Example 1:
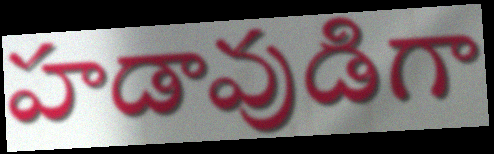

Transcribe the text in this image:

హడావుడిగా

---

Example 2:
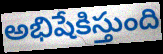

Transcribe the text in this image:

అభిషేకిస్తుంది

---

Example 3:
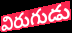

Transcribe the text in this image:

విరుగుడు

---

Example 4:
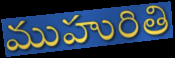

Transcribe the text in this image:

ముహురితి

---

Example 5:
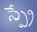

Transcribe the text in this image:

స్ప్రే